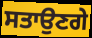
ਸਤਾਉਣਗੇ